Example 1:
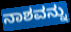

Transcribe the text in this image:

ನಾಶವನ್ನು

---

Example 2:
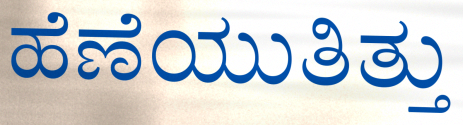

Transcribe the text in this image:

ಹೆಣೆಯುತಿತ್ತು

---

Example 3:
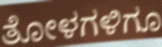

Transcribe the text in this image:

ತೋಳಗಳಿಗೂ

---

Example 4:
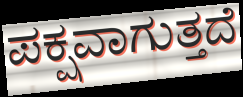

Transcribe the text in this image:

ಪಕ್ಷವಾಗುತ್ತದೆ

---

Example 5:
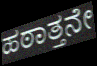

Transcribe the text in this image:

ಹಠಾತ್ತನೇ